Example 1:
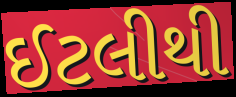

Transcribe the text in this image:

ઈટલીથી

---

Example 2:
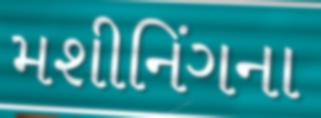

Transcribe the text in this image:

મશીનિંગના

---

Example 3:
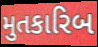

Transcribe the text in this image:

મુતકારિબ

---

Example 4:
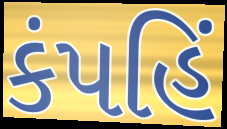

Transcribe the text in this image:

કંપહિં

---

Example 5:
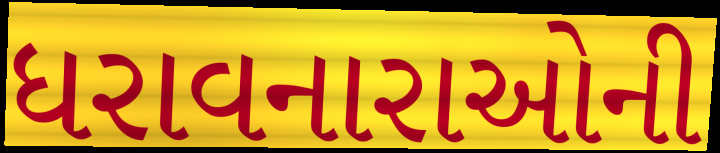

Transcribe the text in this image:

ધરાવનારાઓની